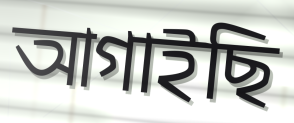
আগাইছি